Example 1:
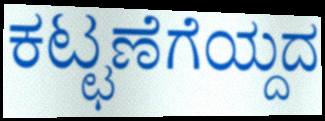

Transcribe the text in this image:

ಕಟ್ಟಣೆಗೆಯ್ದದ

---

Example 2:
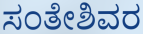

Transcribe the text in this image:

ಸಂತೇಶಿವರ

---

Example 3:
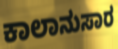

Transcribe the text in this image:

ಕಾಲಾನುಸಾರ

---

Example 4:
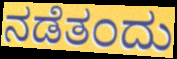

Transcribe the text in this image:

ನಡೆತಂದು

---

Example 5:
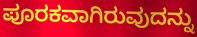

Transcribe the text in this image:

ಪೂರಕವಾಗಿರುವುದನ್ನು